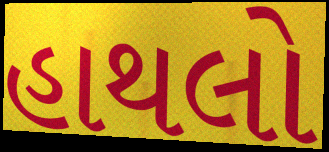
હાથલો